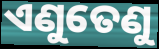
ଏଣୁତେଣୁ